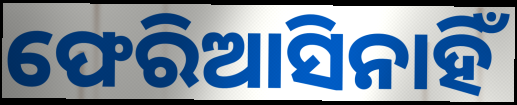
ଫେରିଆସିନାହିଁ